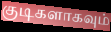
குடிகளாகவும்